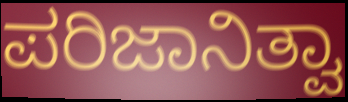
ಪರಿಜಾನಿತ್ವಾ